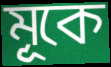
মূকে